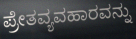
ಪ್ರೇತವ್ಯವಹಾರವನ್ನು